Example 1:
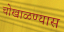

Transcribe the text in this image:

चोखाळण्यास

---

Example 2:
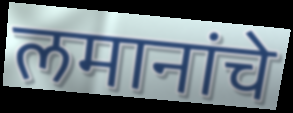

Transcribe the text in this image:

लमानांचे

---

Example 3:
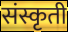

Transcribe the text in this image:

संस्कृती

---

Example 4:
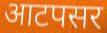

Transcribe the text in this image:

आटपसर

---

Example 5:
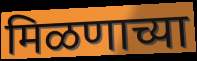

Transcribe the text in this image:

मिळणाच्या